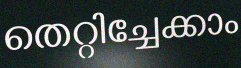
തെറ്റിച്ചേക്കാം